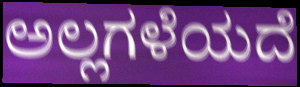
ಅಲ್ಲಗಳೆಯದೆ